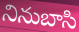
నినుబాసి